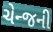
ચેન્જની